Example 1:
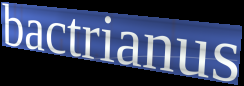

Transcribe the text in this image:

bactrianus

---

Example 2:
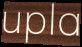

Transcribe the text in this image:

upla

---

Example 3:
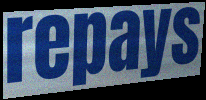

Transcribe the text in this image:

repays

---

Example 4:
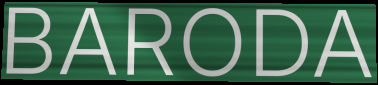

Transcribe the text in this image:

BARODA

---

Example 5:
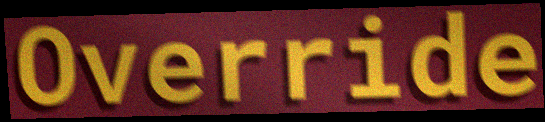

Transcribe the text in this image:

Override